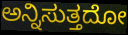
ಅನ್ನಿಸುತ್ತದೋ